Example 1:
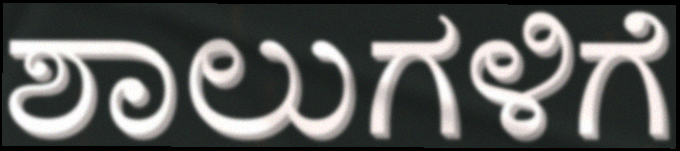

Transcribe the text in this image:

ಶಾಲುಗಳಿಗೆ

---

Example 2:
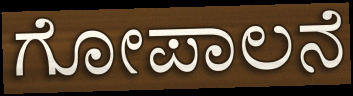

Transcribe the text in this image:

ಗೋಪಾಲನೆ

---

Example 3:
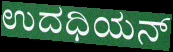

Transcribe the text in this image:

ಉದಧಿಯನ್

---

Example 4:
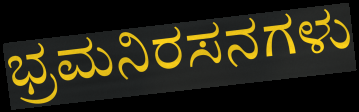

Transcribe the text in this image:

ಭ್ರಮನಿರಸನಗಳು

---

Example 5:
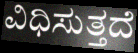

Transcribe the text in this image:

ವಿಧಿಸುತ್ತದೆ